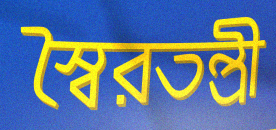
স্বৈরতন্ত্রী